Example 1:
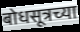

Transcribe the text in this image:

बोधसूत्रच्या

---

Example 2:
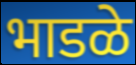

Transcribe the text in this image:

भाडळे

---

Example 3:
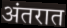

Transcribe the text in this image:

अंतरात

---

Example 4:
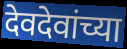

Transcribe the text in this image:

देवदेवांच्या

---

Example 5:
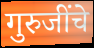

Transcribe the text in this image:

गुरुजींचे